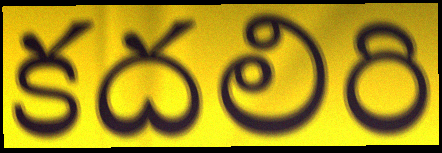
కదలిరి